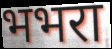
भभरा